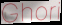
Ghori